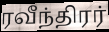
ரவீந்திரர்